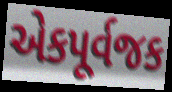
એકપૂર્વજક